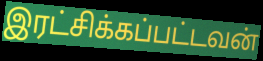
இரட்சிக்கப்பட்டவன்